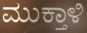
ಮುಕ್ತಾಳಿ